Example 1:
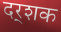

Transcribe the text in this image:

दर्शक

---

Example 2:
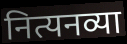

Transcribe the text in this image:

नित्यनव्या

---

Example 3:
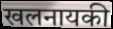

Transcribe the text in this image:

खलनायकी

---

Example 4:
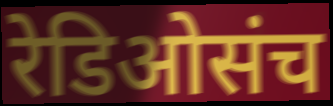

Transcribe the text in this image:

रेडिओसंच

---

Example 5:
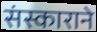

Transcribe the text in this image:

संस्काराने